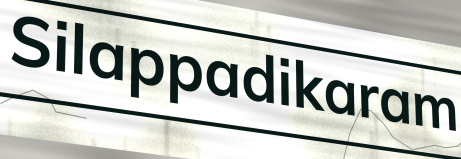
Silappadikaram